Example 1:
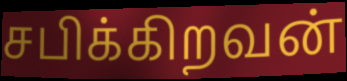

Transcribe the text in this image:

சபிக்கிறவன்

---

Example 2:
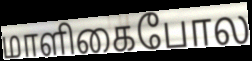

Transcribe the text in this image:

மாளிகைபோல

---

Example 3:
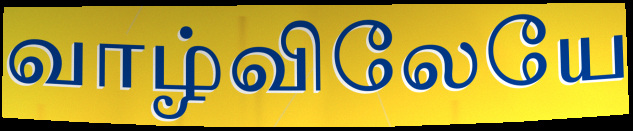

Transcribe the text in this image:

வாழ்விலேயே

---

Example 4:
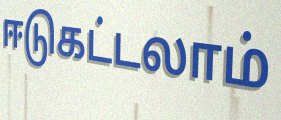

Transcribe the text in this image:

ஈடுகட்டலாம்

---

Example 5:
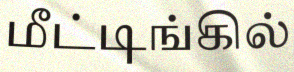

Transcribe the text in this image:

மீட்டிங்கில்